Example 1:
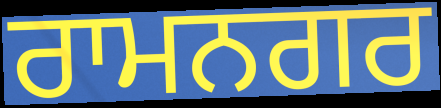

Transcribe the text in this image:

ਰਾਮਨਗਰ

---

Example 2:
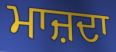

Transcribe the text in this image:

ਮਾਜ਼ਦਾ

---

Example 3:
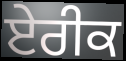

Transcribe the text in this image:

ਏਰੀਕ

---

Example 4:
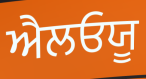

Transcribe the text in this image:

ਐਲਓਯੂ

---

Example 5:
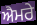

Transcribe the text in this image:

ਐਮਰੇ